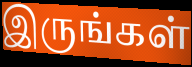
இருங்கள்